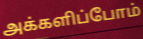
அக்களிப்போம்